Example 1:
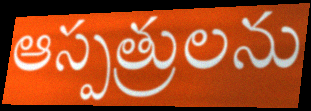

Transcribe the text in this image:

ఆస్పత్రులను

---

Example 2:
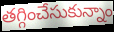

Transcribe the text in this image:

తగ్గించేసుకున్నాం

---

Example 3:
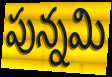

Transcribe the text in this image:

పున్నమి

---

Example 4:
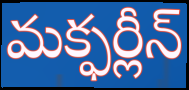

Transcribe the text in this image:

మక్ఫర్లీన్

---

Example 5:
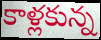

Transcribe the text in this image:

కాళ్లకున్న